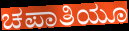
ಚಪಾತಿಯೂ